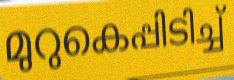
മുറുകെപ്പിടിച്ച്